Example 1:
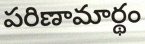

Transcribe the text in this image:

పరిణామార్థం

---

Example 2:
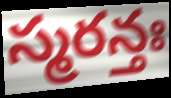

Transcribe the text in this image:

స్మరన్తః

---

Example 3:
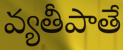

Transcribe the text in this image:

వ్యతీపాతే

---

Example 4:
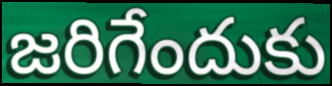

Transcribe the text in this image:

జరిగేందుకు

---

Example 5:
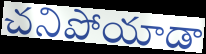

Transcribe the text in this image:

చనిపోయాడా